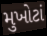
મુખોટાં